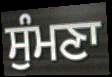
ਸੁੰਮਣਾ